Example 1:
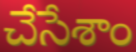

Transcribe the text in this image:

చేసేశాం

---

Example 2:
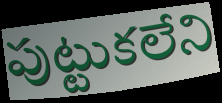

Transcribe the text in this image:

పుట్టుకలేని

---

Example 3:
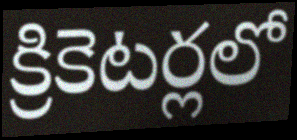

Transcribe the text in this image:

క్రికెటర్లలో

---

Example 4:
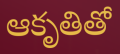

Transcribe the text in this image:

ఆకృతితో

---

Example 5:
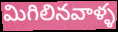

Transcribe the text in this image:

మిగిలినవాళ్ళ